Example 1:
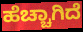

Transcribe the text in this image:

ಹೆಚ್ಚಾಗಿದೆ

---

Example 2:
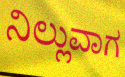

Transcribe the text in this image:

ನಿಲ್ಲುವಾಗ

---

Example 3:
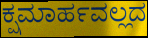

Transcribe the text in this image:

ಕ್ಷಮಾರ್ಹವಲ್ಲದ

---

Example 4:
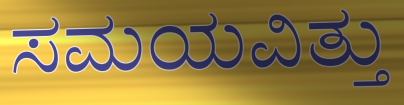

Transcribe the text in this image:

ಸಮಯವಿತ್ತು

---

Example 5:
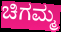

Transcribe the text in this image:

ಚಿಗಮ್ಮ